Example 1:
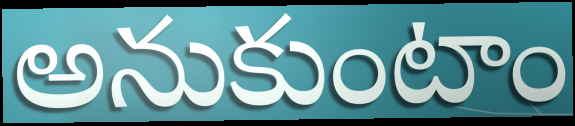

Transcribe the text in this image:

అనుకుంటాం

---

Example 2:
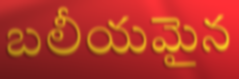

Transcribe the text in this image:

బలీయమైన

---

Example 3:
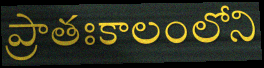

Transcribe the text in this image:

ప్రాతఃకాలంలోని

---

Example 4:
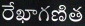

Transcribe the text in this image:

రేఖాగణిత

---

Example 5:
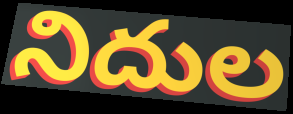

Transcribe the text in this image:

నిదుల